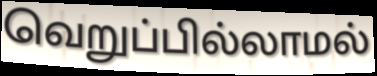
வெறுப்பில்லாமல்